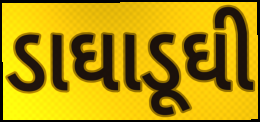
ડાઘાડૂઘી